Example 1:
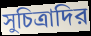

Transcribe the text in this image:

সুচিত্রাদির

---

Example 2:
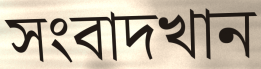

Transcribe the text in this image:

সংবাদখান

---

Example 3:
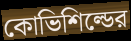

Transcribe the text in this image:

কোভিশিল্ডের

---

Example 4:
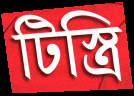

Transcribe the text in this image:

টিস্ত্রি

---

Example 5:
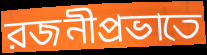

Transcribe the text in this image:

রজনীপ্রভাতে